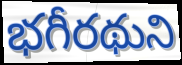
భగీరథుని